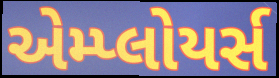
એમ્પ્લોયર્સ